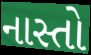
નાસ્તો